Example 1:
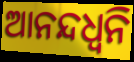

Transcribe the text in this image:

ଆନନ୍ଦଧ୍ଵନି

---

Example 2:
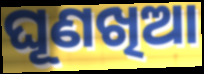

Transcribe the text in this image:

ଘୂଣଖିଆ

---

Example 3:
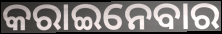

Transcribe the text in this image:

କରାଇନେବାର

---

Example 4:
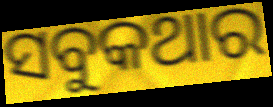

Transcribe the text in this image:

ସବୁକଥାର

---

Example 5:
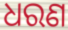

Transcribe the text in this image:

ଧରଣ